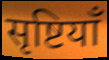
सृष्टियाँ